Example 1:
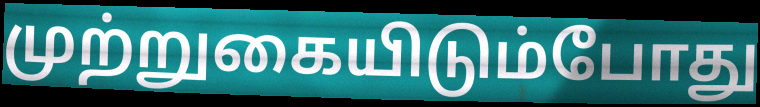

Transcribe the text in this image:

முற்றுகையிடும்போது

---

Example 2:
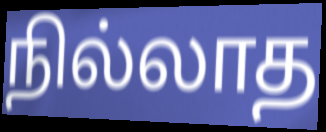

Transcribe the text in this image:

நில்லாத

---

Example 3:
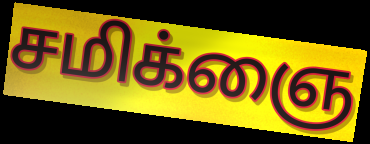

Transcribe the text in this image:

சமிக்ஞை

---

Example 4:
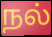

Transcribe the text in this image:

நல்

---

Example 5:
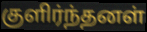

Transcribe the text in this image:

குளிர்ந்தனள்